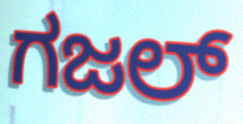
ಗಜಲ್